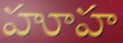
హూహ